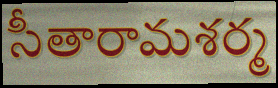
సీతారామశర్మ